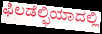
ಫಿಲಡೆಲ್ಫಿಯಾದಲ್ಲಿ